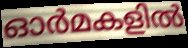
ഓർമകളിൽ